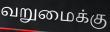
வறுமைக்கு